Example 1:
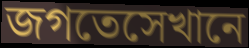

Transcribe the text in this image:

জগতেসেখানে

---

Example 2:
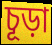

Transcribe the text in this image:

চূড়া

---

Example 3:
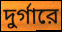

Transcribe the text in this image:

দুর্গারে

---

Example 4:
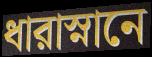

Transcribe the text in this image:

ধারাস্নানে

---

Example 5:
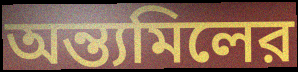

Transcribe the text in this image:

অন্ত্যমিলের